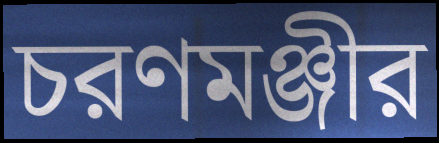
চরণমঞ্জীর